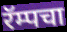
रॅम्पचा